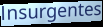
Insurgentes